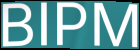
BIPM